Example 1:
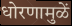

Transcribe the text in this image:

धोरणामुळें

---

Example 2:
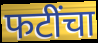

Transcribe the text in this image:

फटींचा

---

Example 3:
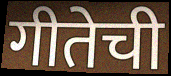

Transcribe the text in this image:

गीतेची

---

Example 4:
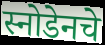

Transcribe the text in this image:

स्नोडेनचे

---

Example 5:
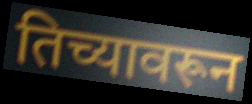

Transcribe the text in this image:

तिच्यावरून